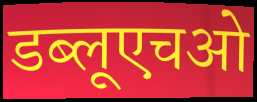
डब्लूएचओ